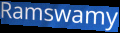
Ramswamy